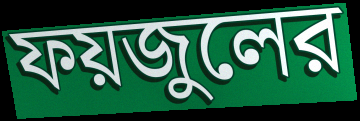
ফয়জুলের